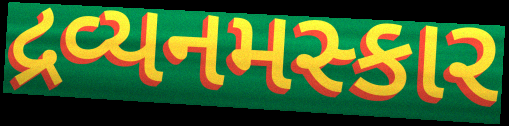
દ્રવ્યનમસ્કાર